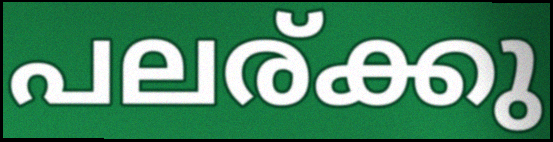
പലര്ക്കു